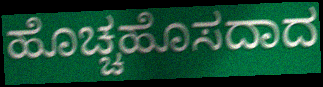
ಹೊಚ್ಚಹೊಸದಾದ